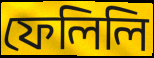
ফেলিলি